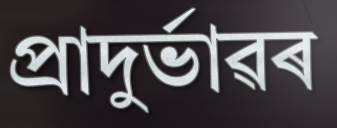
প্ৰাদুৰ্ভাৱৰ